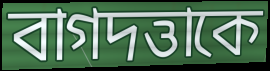
বাগদত্তাকে